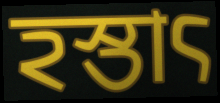
হস্তাৎ